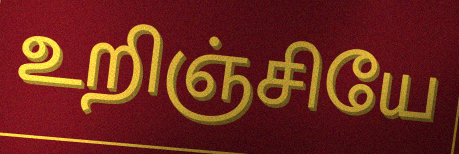
உறிஞ்சியே